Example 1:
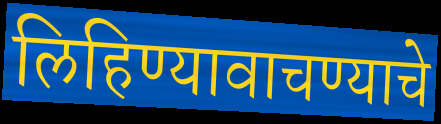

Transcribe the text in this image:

लिहिण्यावाचण्याचे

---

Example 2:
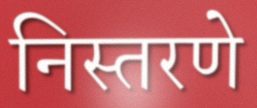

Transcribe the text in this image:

निस्तरणे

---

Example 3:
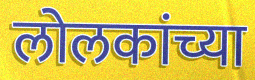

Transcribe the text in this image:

लोलकांच्या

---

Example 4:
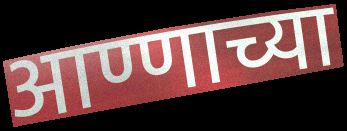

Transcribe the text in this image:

आण्णाच्या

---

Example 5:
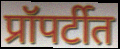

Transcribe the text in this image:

प्रॉपर्टीत